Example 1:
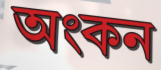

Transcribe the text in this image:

অংকন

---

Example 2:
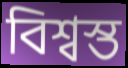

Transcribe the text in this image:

বিশ্বস্ত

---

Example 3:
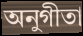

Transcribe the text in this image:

অনুগীতা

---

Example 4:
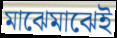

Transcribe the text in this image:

মাঝেমাঝেই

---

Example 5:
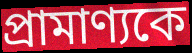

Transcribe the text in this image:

প্রামাণ্যকে